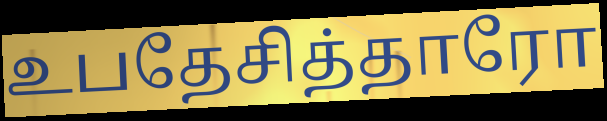
உபதேசித்தாரோ